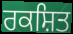
ਰਕਸ਼ਿਤ